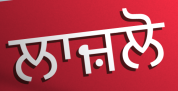
ਲਾਜ਼ਲੋ